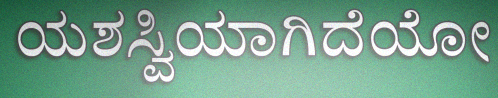
ಯಶಸ್ವಿಯಾಗಿದೆಯೋ